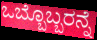
ಒಬ್ಬೊಬ್ಬರನ್ನೆ